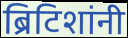
ब्रिटिशांनी